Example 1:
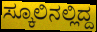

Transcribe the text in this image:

ಸ್ಕೂಲಿನಲ್ಲಿದ್ದ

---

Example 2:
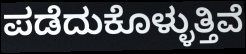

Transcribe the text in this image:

ಪಡೆದುಕೊಳ್ಳುತ್ತಿವೆ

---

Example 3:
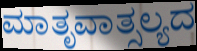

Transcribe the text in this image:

ಮಾತೃವಾತ್ಸಲ್ಯದ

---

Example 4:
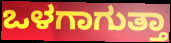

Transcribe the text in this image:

ಒಳಗಾಗುತ್ತಾ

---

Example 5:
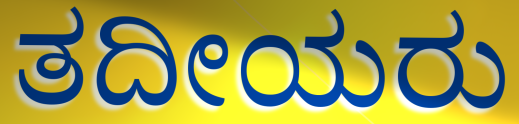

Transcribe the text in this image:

ತದೀಯರು